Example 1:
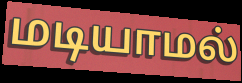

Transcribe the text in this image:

மடியாமல்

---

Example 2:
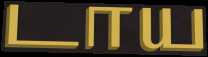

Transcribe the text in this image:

டாய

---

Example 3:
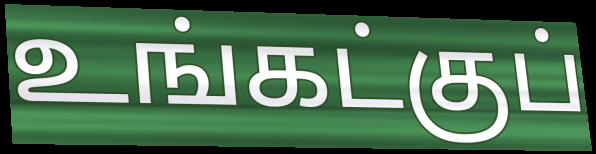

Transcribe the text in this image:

உங்கட்குப்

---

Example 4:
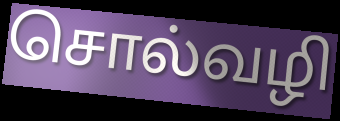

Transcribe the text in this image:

சொல்வழி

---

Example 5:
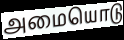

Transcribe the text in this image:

அமையொடு